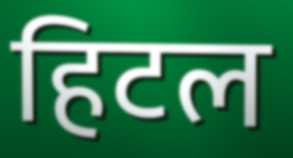
हिटल